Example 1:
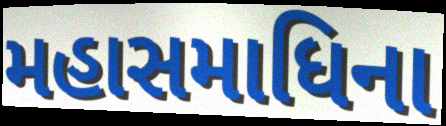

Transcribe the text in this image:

મહાસમાધિના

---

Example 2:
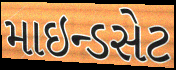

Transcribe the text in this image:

માઇન્ડસેટ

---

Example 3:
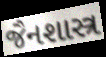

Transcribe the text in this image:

જૈનશાસ્ત્ર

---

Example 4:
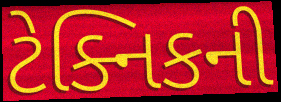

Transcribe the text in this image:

ટેક્નિકની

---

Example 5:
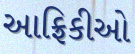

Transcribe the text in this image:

આફ્રિકીઓ